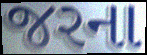
જરના